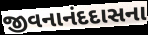
જીવનાનંદદાસના